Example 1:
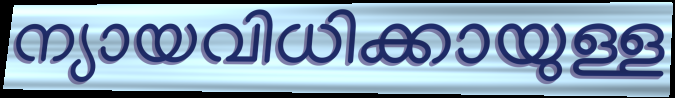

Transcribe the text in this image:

ന്യായവിധിക്കായുള്ള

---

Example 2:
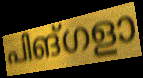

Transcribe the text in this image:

പിങ്ഗളാ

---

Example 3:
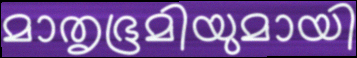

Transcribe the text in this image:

മാതൃഭൂമിയുമായി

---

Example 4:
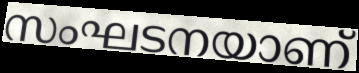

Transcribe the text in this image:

സംഘടനയാണ്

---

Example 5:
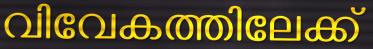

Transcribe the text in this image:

വിവേകത്തിലേക്ക്